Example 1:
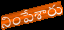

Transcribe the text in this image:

నింపేశారు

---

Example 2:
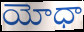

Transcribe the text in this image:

యోధా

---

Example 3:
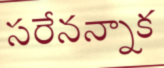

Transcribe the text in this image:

సరేనన్నాక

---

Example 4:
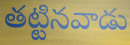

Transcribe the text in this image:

తట్టినవాడు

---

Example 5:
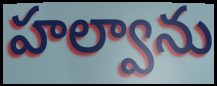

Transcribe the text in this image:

హల్వాను